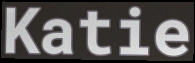
Katie